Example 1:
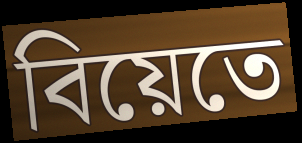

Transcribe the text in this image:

বিয়েতে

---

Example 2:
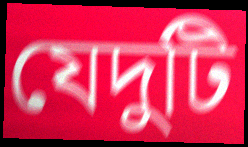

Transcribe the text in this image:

যেদুটি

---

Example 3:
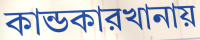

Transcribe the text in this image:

কান্ডকারখানায়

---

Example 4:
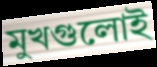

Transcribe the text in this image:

মুখগুলোই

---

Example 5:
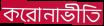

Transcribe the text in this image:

করোনাভীতি